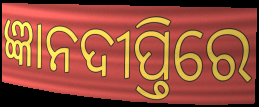
ଜ୍ଞାନଦୀପ୍ତିରେ